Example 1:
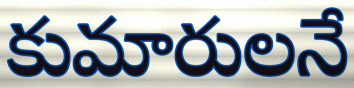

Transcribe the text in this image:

కుమారులనే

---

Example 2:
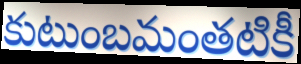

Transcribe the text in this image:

కుటుంబమంతటికీ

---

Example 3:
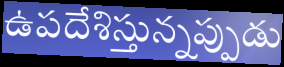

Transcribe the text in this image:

ఉపదేశిస్తున్నప్పుడు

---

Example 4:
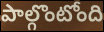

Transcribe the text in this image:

పాల్గొంటోంది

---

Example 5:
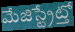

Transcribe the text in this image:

మేజిస్ట్రేట్తో